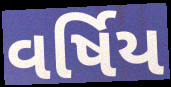
વર્ષિય